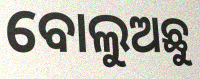
ବୋଲୁଅଛୁ